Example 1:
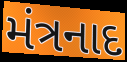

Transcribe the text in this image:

મંત્રનાદ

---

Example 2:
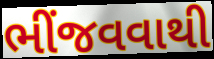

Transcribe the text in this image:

ભીંજવવાથી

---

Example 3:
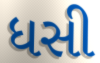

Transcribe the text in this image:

ધસી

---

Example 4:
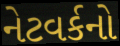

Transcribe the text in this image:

નેટવર્કનો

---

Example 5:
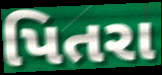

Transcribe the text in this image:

પિતરા